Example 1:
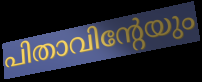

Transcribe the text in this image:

പിതാവിന്റേയും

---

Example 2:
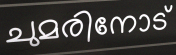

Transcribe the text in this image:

ചുമരിനോട്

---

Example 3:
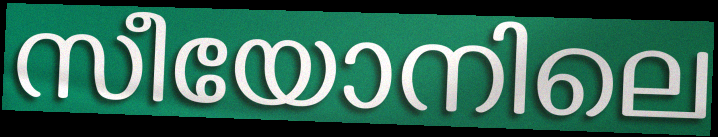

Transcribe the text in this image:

സീയോനിലെ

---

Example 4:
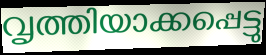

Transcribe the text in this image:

വൃത്തിയാക്കപ്പെട്ടു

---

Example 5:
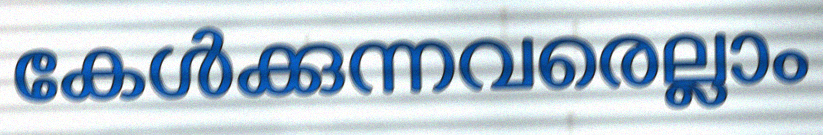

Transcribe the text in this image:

കേൾക്കുന്നവരെല്ലാം